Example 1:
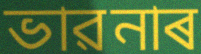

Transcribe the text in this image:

ভাৱনাৰ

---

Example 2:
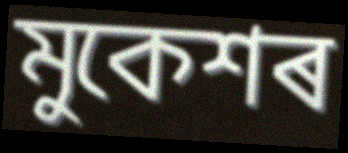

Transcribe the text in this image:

মুকেশৰ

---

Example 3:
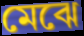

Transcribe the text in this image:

মেঝে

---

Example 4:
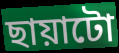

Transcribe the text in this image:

ছায়াটো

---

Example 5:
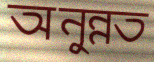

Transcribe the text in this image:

অনুন্নত